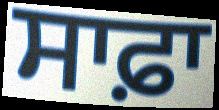
ਸਾਫ਼ਾ